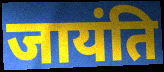
जायंति